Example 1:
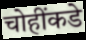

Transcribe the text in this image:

चोहींकडे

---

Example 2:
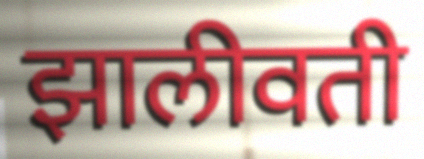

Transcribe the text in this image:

झालीवती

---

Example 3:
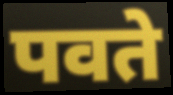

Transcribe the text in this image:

पवते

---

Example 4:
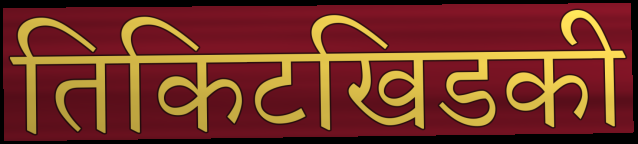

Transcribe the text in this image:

तिकिटखिडकी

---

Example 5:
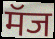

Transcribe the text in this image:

मॅज